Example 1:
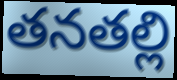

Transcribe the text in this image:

తనతల్లి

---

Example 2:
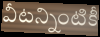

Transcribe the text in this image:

వీటన్నింటికీ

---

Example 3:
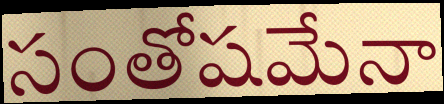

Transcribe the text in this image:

సంతోషమేనా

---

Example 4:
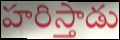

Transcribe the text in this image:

హరిస్తాడు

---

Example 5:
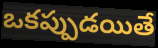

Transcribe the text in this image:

ఒకప్పుడయితే